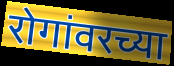
रोगांवरच्या